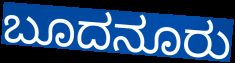
ಬೂದನೂರು